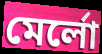
মের্লো